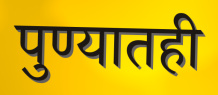
पुण्यातही